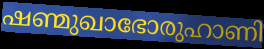
ഷണ്മുഖാഭോരുഹാണി